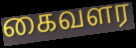
கைவளர